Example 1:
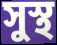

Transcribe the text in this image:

সুস্থ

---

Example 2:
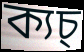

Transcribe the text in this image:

ক্যচ্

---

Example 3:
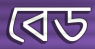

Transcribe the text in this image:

বেড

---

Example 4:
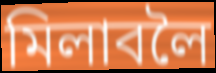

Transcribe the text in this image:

মিলাবলৈ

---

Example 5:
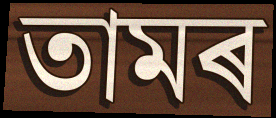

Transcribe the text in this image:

তামৰ